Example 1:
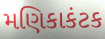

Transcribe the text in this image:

મણિકાકંટક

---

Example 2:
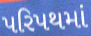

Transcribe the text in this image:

પરિપથમાં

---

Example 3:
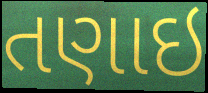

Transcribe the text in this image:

તણાઇ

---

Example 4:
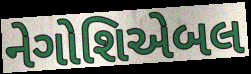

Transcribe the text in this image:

નેગોશિએબલ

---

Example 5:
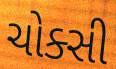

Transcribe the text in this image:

ચોક્સી